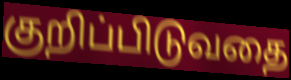
குறிப்பிடுவதை